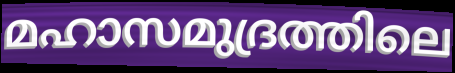
മഹാസമുദ്രത്തിലെ